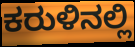
ಕರುಳಿನಲ್ಲಿ